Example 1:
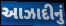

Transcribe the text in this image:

આઝાદીનું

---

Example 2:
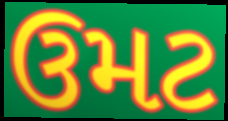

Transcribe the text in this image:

ઉમટ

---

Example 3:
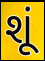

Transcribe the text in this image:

શૂં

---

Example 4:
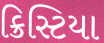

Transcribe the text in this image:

ક્રિસ્ટિયા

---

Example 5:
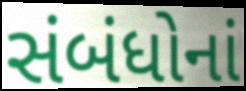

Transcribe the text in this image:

સંબંધોનાં